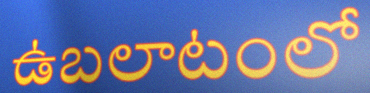
ఉబలాటంలో